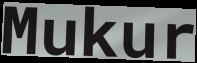
Mukur